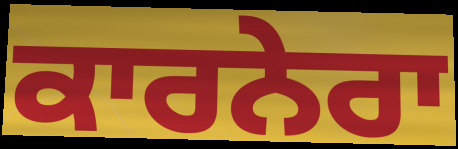
ਕਾਰਨੇਰਾ